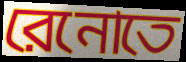
রেনোতে